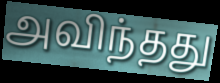
அவிந்தது